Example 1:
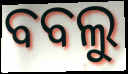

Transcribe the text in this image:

ବବଲୁ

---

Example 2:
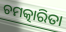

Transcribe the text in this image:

ଚମତ୍କାରିତା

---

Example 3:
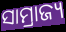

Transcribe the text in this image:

ସାମ୍ରାଜ୍ଯ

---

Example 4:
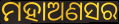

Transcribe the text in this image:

ମହାଅଣସର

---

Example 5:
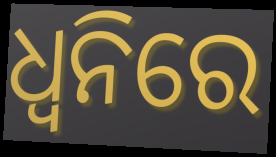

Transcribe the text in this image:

ଧ୍ଵନିରେ